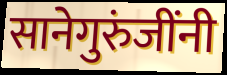
सानेगुरुंजींनी